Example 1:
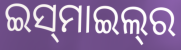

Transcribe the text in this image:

ଇସ୍‌ମାଇଲ୍‌ର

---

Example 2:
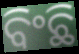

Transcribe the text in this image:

ବିଂଛି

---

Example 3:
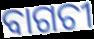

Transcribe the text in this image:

ବାଗଚୀ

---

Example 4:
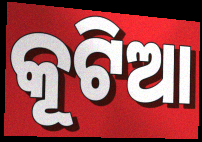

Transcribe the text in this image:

କୂଟିଆ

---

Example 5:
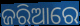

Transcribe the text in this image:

ଜରିଆରେ